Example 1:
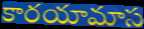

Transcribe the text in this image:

కారయామాస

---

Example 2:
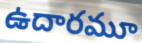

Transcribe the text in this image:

ఉదారమూ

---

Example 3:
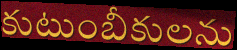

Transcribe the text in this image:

కుటుంబీకులను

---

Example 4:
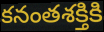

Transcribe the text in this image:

కనంతశక్తికి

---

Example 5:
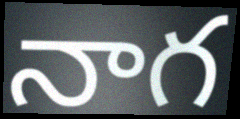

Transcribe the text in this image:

నాగ